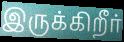
இருக்கிறீர்